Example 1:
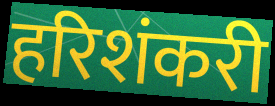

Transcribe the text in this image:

हरिशंकरी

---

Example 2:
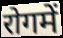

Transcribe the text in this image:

रोगमें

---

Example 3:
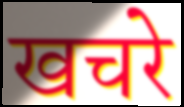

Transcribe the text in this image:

खचरे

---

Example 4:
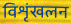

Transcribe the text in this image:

विशृंखलन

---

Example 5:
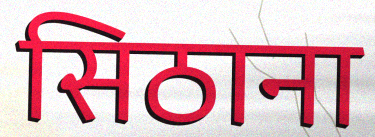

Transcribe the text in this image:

सिठाना